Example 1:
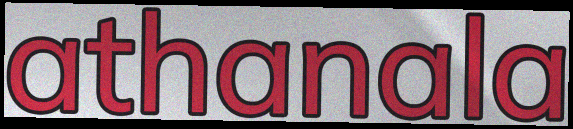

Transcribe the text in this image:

athanala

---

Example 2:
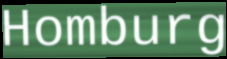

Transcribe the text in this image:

Homburg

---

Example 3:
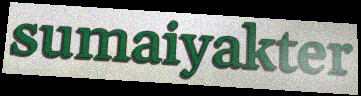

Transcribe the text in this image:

sumaiyakter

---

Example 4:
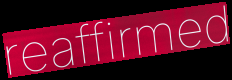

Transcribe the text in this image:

reaffirmed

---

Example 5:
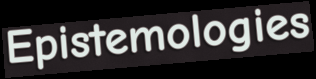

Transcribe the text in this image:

Epistemologies